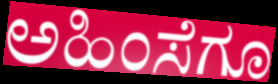
ಅಹಿಂಸೆಗೂ